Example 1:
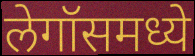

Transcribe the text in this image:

लेगॉसमध्ये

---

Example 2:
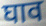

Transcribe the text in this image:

घाव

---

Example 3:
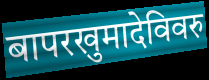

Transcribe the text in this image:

बापरखुमादेविवरु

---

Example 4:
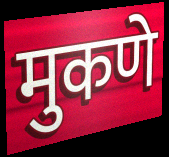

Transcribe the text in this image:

मुकणे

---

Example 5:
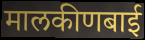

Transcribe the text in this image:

मालकीणबाई